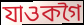
যাওকগৈ